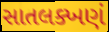
સાતલક્ખણં